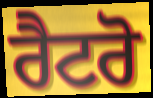
ਰੈਟਰੋ